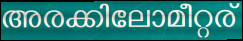
അരക്കിലോമീറ്റര്